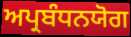
ਅਪ੍ਰਬੰਧਨਯੋਗ